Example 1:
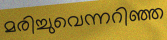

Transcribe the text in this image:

മരിച്ചുവെന്നറിഞ്ഞ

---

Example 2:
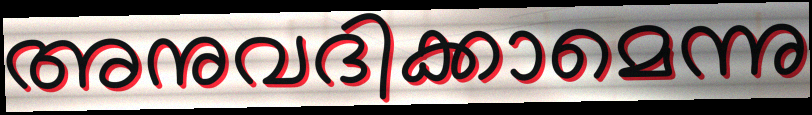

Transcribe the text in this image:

അനുവദിക്കാമെന്നു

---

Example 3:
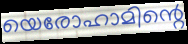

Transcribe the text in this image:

യെരോഹാമിന്റെ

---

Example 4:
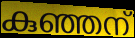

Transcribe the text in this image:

കുഞ്ഞന്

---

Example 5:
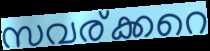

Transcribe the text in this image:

സവര്ക്കറെ